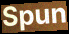
Spun